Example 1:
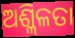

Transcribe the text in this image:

ଅଶ୍ଲିଳତା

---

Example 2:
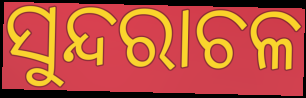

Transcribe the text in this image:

ସୁନ୍ଦରାଚଳ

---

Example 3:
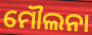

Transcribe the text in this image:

ମୌଲନା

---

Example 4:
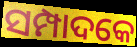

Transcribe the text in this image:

ସମ୍ପାଦକେ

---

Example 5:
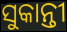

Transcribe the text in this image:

ସୁକାନ୍ତୀ